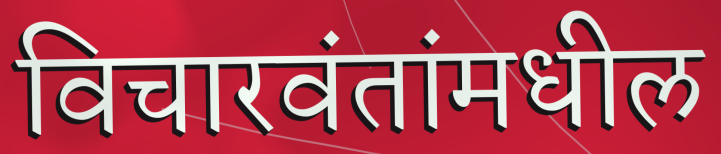
विचारवंतांमधील